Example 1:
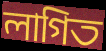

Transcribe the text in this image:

লাগিত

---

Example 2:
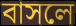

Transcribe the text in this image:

বাসলে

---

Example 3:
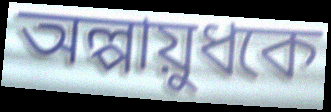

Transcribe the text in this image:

অল্পায়ুধকে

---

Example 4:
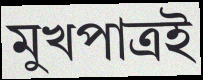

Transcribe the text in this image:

মুখপাত্রই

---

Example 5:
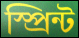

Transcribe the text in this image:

স্প্রিন্ট